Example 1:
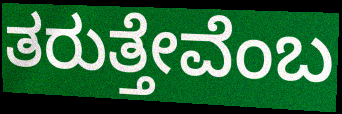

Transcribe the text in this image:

ತರುತ್ತೇವೆಂಬ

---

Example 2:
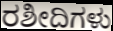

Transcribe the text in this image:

ರಶೀದಿಗಳು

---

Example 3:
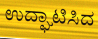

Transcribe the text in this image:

ಉದ್ಘಾಟಿಸಿದ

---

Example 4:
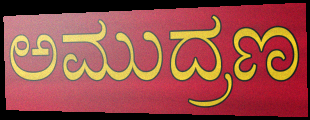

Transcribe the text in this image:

ಅಮುದ್ರಣ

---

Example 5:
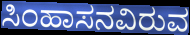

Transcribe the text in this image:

ಸಿಂಹಾಸನವಿರುವ